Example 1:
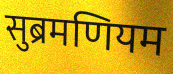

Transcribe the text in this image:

सुब्रमणियम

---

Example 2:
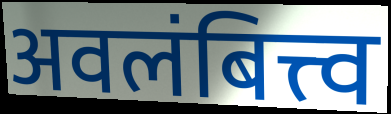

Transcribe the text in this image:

अवलंबित्त्व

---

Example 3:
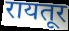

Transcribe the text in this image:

रायतूर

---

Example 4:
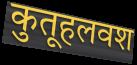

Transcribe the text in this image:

कुतूहलवश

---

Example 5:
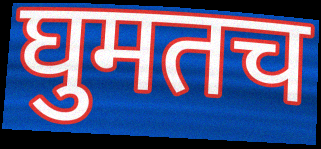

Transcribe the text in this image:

घुमतच